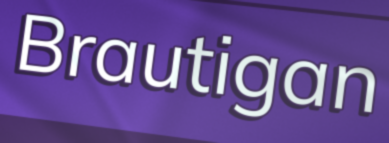
Brautigan